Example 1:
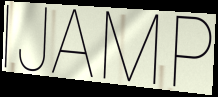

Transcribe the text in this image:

IJAMP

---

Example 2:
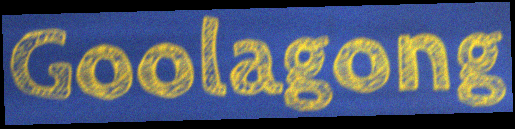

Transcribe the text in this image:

Goolagong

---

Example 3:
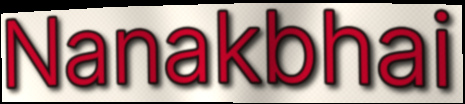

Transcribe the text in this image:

Nanakbhai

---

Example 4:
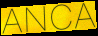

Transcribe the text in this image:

ANCA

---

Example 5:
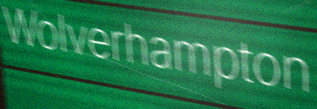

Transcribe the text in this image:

Wolverhampton